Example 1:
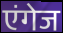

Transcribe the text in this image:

एंगेज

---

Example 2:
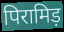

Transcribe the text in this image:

पिरामिड़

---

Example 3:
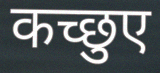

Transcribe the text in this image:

कच्छुए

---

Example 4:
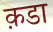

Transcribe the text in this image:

क़डा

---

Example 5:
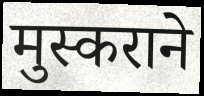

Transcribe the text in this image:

मुस्कराने